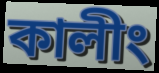
কালীং